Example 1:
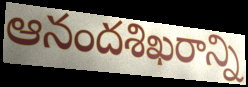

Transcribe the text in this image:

ఆనందశిఖరాన్ని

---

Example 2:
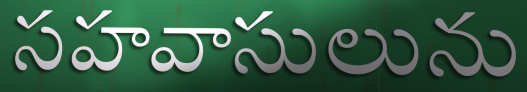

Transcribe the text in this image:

సహవాసులును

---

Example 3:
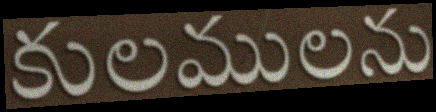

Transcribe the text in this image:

కులములను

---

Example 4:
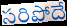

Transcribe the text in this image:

సరిపోదే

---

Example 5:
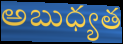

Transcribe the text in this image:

అబుధ్యత